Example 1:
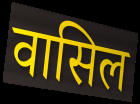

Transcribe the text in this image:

वासिल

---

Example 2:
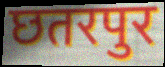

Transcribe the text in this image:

छतरपुर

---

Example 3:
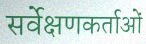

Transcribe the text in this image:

सर्वेक्षणकर्ताओं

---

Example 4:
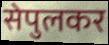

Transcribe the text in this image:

सेपुलकर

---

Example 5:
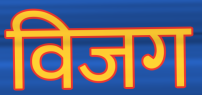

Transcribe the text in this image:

विजग